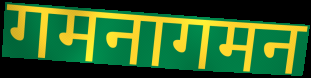
गमनागमन